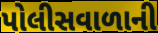
પોલીસવાળાની